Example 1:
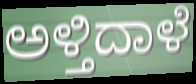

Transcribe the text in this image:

ಅಳ್ತಿದಾಳೆ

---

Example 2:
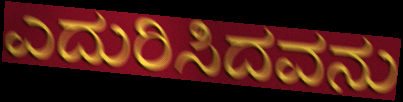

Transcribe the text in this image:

ಎದುರಿಸಿದವನು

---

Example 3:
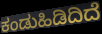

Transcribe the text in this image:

ಕಂಡುಹಿಡಿದಿದೆ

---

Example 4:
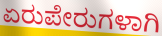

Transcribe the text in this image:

ಏರುಪೇರುಗಳಾಗಿ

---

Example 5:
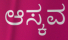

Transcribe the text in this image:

ಆಸ್ಕವ